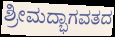
ಶ್ರೀಮದ್ಭಾಗವತದ